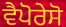
ਵੈਪੋਰੇਸੋ